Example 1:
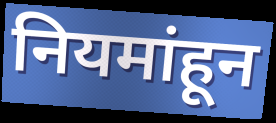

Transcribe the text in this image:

नियमांहून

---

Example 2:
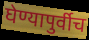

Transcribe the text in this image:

घेण्यापुर्वीच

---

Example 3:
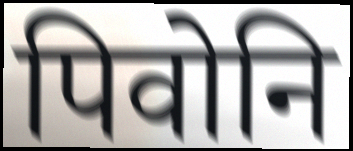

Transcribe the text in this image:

पिवोनि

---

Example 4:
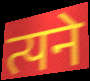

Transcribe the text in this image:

त्यने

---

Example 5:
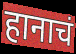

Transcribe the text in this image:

हानाचं